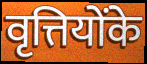
वृत्तियोंके